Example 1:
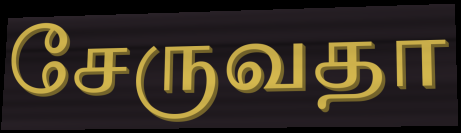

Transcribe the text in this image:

சேருவதா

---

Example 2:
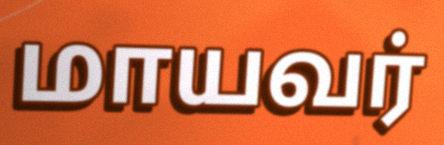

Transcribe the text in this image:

மாயவர்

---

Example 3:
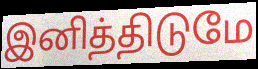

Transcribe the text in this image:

இனித்திடுமே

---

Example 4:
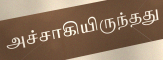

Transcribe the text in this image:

அச்சாகியிருந்தது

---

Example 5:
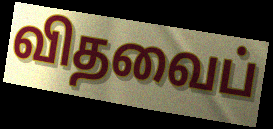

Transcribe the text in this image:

விதவைப்